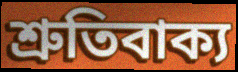
শ্রুতিবাক্য